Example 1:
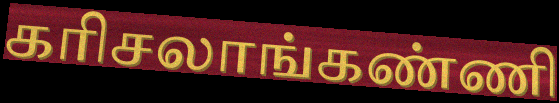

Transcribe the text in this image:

கரிசலாங்கண்ணி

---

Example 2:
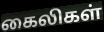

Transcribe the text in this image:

கைலிகள்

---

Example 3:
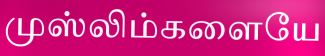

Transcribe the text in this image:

முஸ்லிம்களையே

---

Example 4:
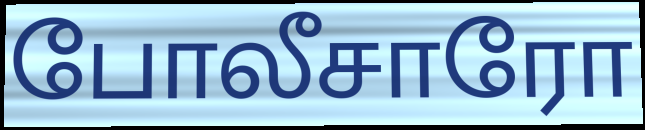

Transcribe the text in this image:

போலீசாரோ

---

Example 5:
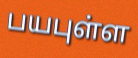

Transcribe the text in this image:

பயபுள்ள